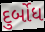
દુર્બોધ